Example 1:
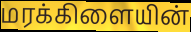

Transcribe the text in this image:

மரக்கிளையின்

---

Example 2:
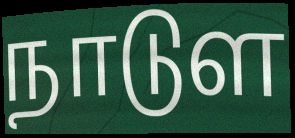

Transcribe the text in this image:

நாடுள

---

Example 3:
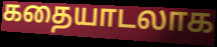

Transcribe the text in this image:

கதையாடலாக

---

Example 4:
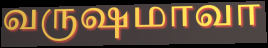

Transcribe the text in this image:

வருஷமாவா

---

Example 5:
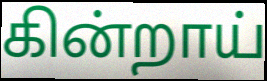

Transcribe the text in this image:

கின்றாய்